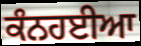
ਕੰਨਹਈਆ